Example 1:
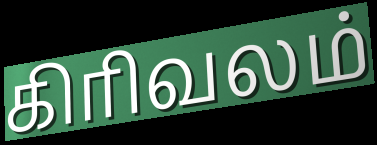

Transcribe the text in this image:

கிரிவலம்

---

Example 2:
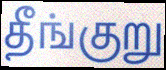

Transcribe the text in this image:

தீங்குறு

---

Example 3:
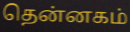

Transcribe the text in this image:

தென்னகம்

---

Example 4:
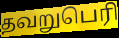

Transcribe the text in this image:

தவறுபெரி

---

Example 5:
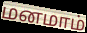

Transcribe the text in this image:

மனமாம்